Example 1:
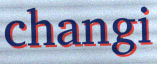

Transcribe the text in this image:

changi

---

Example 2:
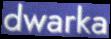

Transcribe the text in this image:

dwarka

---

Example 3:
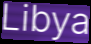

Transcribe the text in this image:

Libya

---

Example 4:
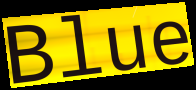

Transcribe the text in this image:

Blue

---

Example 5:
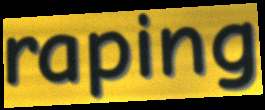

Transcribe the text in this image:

raping